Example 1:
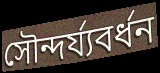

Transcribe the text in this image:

সৌন্দৰ্য্যবৰ্ধন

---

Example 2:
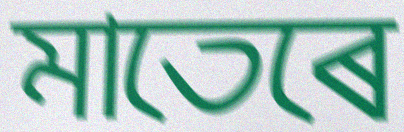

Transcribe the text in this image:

মাতেৰে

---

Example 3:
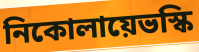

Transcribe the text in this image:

নিকোলায়েভস্কি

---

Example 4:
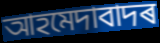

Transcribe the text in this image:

আহমেদাবাদৰ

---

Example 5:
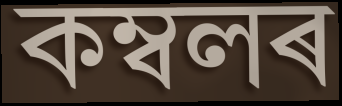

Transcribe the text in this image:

কম্বলৰ